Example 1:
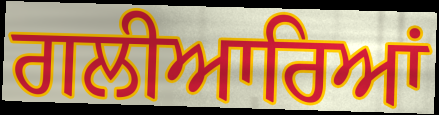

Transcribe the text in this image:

ਗਲੀਆਰਿਆਂ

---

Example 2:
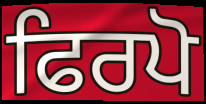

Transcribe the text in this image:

ਫਿਰਪੋ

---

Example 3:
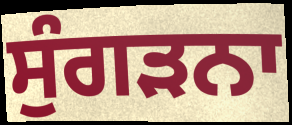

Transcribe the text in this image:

ਸੁੰਗੜਨਾ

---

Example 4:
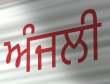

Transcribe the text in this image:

ਅੰਜਲੀ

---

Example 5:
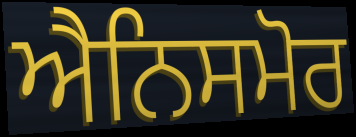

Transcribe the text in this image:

ਐਨਿਸਮੋਰ